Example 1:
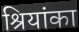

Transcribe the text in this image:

श्रियांका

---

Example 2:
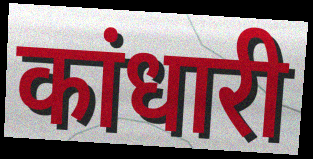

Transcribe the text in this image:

कांधारी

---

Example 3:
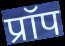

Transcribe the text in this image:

प्रॉप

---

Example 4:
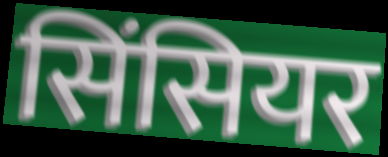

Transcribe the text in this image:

सिंसियर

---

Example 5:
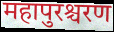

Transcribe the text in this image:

महापुरश्चरण